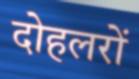
दोहलरों